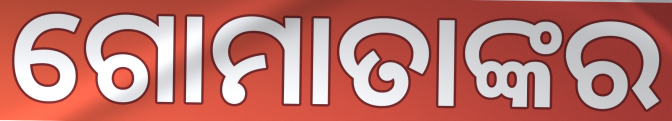
ଗୋମାତାଙ୍କର